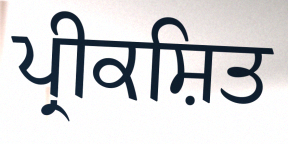
ਪ੍ਰੀਕਸ਼ਿਤ